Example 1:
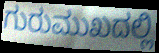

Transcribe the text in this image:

ಗುರುಮುಖದಲ್ಲಿ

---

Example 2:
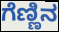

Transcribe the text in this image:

ಗೆಣ್ಣಿನ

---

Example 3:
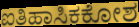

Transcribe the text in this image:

ಐತಿಹಾಸಿಕಕೋಶ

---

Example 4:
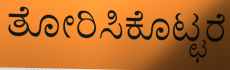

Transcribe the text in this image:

ತೋರಿಸಿಕೊಟ್ಟರೆ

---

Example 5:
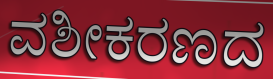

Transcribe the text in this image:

ವಶೀಕರಣದ